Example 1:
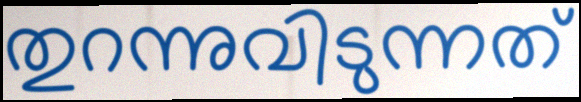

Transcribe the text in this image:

തുറന്നുവിടുന്നത്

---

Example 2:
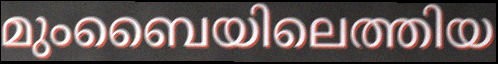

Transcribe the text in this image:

മുംബൈയിലെത്തിയ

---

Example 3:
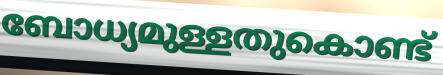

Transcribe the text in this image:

ബോധ്യമുള്ളതുകൊണ്ട്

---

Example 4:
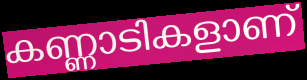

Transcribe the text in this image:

കണ്ണാടികളാണ്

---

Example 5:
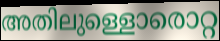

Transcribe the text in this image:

അതിലുള്ളൊരൊറ്റ